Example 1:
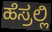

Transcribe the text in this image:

ಹೆಸ್ರಲ್ಲಿ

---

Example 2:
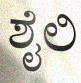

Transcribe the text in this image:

ಶೈಲಿ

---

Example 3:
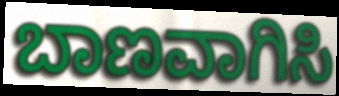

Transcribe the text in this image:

ಬಾಣವಾಗಿಸಿ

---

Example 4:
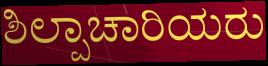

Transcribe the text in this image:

ಶಿಲ್ಪಾಚಾರಿಯರು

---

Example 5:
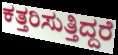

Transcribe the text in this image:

ಕತ್ತರಿಸುತ್ತಿದ್ದರೆ